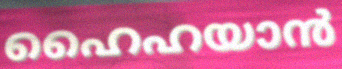
ഹൈഹയാൻ